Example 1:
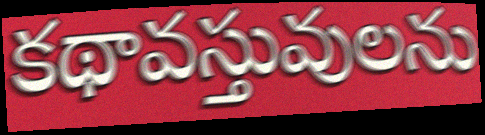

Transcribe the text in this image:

కథావస్తువులను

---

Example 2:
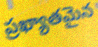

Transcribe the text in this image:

ప్రఖ్యాతమైన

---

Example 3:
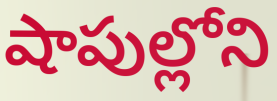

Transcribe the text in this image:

షాపుల్లోని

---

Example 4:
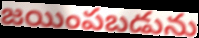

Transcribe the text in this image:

జయింపబడును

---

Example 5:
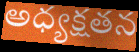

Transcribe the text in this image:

అధ్యక్షతన